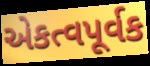
એકત્વપૂર્વક